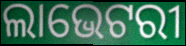
ଲାଭେଟରୀ